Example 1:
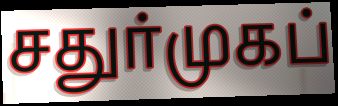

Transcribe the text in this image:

சதுர்முகப்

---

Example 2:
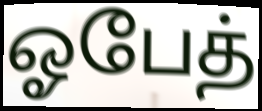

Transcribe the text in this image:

ஓபேத்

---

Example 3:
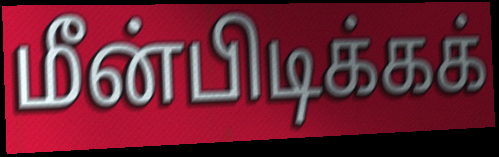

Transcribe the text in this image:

மீன்பிடிக்கக்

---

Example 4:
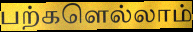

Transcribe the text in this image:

பற்களெல்லாம்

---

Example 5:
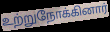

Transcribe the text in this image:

உற்றுநோக்கினார்